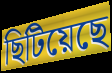
ছিটিয়েছে